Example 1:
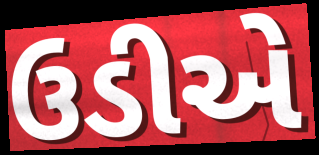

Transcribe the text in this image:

ઉડીએ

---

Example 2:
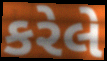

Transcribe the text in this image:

કરેલે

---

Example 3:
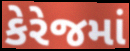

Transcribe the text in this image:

કેરેજમાં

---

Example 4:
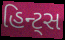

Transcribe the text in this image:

હિન્ટ્સ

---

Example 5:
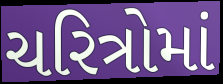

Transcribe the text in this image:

ચરિત્રોમાં